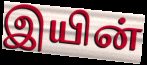
இயின்